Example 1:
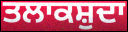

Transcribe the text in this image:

ਤਲਾਕਸ਼ੁਦਾ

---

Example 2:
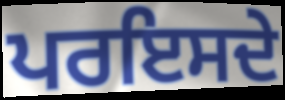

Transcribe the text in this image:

ਪਰਇਸਦੇ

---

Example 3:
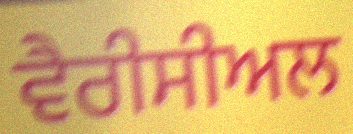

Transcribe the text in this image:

ਵੈਰੀਸੀਅਲ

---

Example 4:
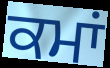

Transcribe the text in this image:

ਕਮਾਂ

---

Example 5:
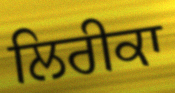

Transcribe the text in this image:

ਲਿਰੀਕਾ